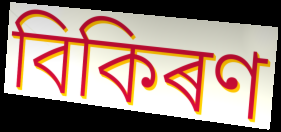
বিকিৰণ